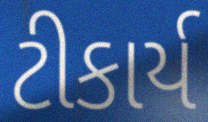
ટીકાર્ય